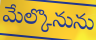
మేల్కొనును